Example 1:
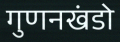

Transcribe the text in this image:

गुणनखंडो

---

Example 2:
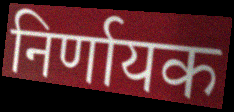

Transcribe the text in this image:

निर्णायक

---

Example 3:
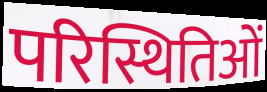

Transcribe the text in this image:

परिस्थितिओं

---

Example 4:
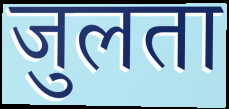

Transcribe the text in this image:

जुलता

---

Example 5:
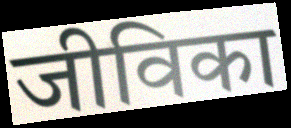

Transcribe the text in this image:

जीविका